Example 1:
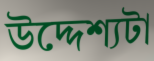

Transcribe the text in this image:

উদ্দেশ্যটা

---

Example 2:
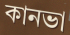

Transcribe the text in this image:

কানভা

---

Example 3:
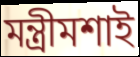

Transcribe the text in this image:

মন্ত্রীমশাই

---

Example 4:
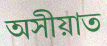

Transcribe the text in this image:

অসীয়াত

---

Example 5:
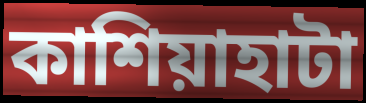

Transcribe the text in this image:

কাশিয়াহাটা